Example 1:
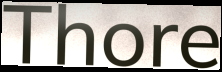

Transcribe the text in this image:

Thore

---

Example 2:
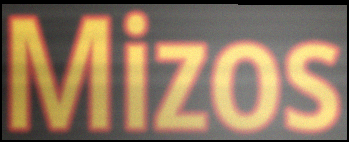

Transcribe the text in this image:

Mizos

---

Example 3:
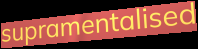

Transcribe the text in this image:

supramentalised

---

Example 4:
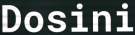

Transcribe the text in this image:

Dosini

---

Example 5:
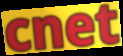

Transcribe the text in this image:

cnet